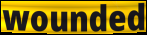
wounded